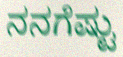
ನನಗೆಷ್ಟು